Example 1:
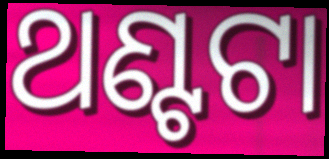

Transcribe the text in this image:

ଥଣ୍ଟଟା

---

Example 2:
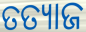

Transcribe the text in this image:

ତତ୍ୟାଜ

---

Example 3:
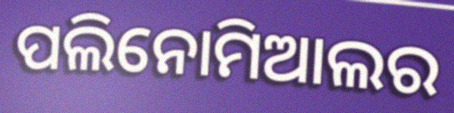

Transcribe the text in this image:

ପଲିନୋମିଆଲର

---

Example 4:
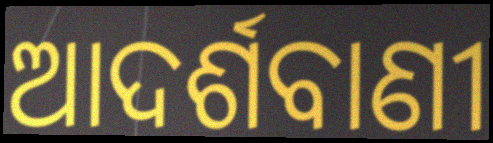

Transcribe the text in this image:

ଆଦର୍ଶବାଣୀ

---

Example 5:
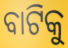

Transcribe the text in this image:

ବାଟିକୁ